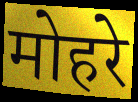
मोहरे